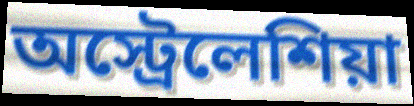
অস্ট্রেলেশিয়া